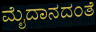
ಮೈದಾನದಂತೆ